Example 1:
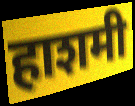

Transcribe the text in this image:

हाशमी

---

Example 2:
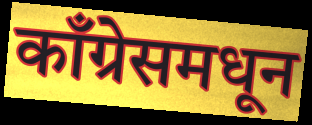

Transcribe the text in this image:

काँग्रेसमधून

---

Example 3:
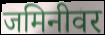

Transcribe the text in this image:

जमिनीवर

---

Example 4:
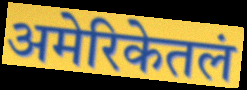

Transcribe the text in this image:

अमेरिकेतलं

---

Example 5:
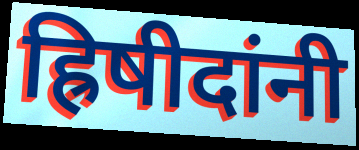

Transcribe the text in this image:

ह्रिषीदांनी